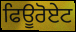
ਫਿਊਰੋਏਟ